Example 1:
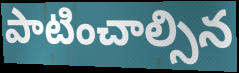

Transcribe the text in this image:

పాటించాల్సిన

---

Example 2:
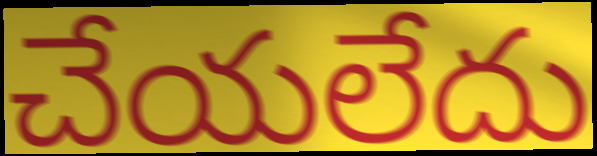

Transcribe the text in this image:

చేయలేదు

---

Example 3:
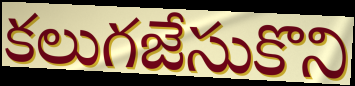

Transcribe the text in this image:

కలుగజేసుకొని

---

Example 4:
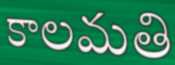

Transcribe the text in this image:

కాలమతి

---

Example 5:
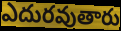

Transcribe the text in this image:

ఎదురవుతారు